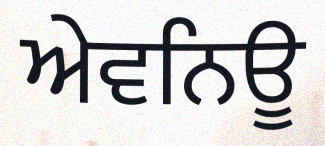
ਅੇਵਨਿਊ